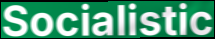
Socialistic